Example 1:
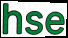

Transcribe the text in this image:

hse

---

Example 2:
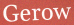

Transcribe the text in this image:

Gerow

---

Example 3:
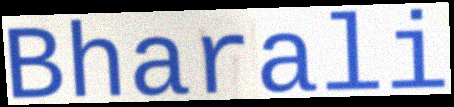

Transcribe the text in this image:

Bharali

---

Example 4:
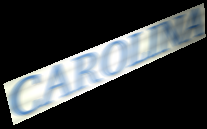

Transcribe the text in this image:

CAROLINA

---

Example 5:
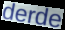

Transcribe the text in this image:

derde